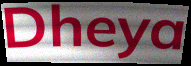
Dheya